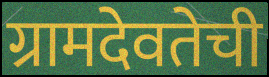
ग्रामदेवतेची